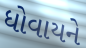
ધોવાયને